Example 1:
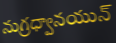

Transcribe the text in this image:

నుగ్రధ్వానయున్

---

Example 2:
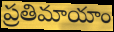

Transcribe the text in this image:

ప్రతిమాయాం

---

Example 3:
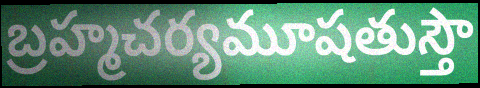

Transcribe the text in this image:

బ్రహ్మచర్యమూషతుస్తౌ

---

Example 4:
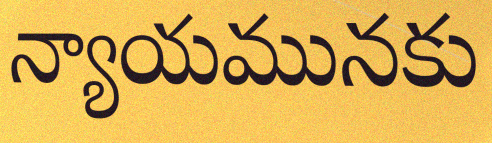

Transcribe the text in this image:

న్యాయమునకు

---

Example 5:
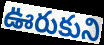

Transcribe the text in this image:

ఊరుకుని